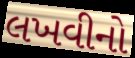
લખવીનો